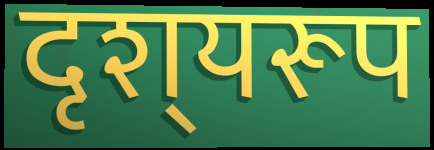
दृश्यरूप